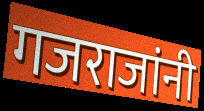
गजराजांनी